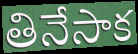
తినేసాక